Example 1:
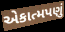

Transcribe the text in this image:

એકાત્મપણું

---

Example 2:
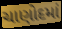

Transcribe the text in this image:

ચાણોદમાં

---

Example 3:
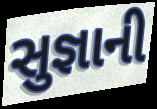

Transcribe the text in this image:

સુજ્ઞાની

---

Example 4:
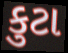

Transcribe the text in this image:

કુટા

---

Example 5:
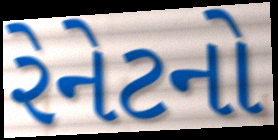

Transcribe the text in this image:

રેનેટનો